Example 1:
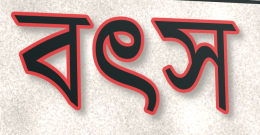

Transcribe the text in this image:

বৎস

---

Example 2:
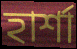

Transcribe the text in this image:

হার্শা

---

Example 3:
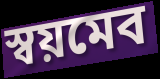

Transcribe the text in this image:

স্বয়মেব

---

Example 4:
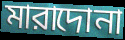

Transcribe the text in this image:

মারাদোনা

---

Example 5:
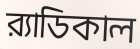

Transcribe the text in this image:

র‍্যাডিকাল